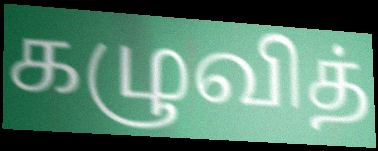
கழுவித்